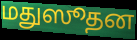
மதுஸூதன